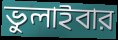
ভুলাইবার